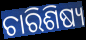
ଚାରିଶିଷ୍ୟ